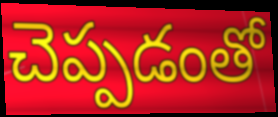
చెప్పడంతో